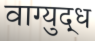
वाग्युद्ध